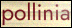
pollinia